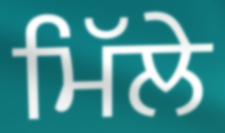
ਮਿੱਲੇ